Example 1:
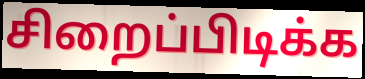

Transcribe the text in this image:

சிறைப்பிடிக்க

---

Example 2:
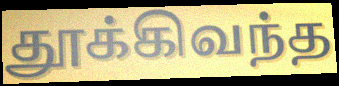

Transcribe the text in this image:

தூக்கிவந்த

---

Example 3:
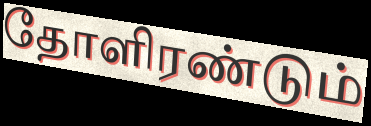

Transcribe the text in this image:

தோளிரண்டும்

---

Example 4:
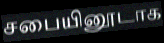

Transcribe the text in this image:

சபையினூடாக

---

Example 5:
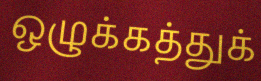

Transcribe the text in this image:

ஒழுக்கத்துக்